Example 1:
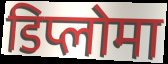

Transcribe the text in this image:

डिप्लोमा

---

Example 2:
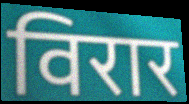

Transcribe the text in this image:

विरार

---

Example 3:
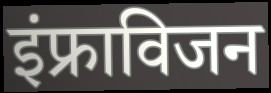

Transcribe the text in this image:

इंफ्राविजन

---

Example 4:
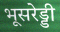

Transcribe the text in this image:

भूसरेड्डी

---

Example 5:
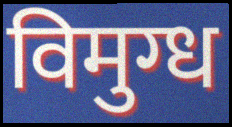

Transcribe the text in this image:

विमुग्ध